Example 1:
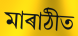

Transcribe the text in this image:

মাৰাঠীত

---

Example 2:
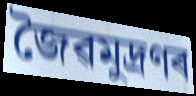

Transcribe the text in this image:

জৈৱমুদ্ৰণৰ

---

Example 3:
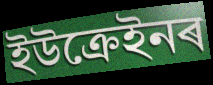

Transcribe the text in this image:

ইউক্ৰেইনৰ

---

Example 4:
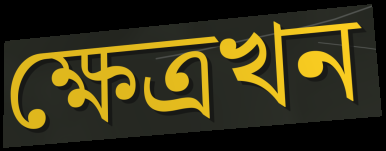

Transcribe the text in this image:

ক্ষেত্ৰখন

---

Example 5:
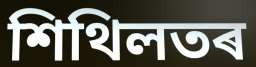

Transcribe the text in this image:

শিথিলতৰ